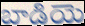
బాడియె